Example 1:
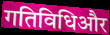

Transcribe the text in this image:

गतिविधिऔर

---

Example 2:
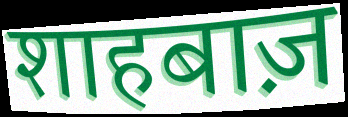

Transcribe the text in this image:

शाहबाज़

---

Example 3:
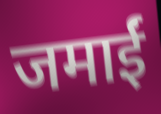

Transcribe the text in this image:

जमाईं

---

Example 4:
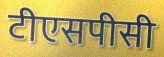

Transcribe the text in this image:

टीएसपीसी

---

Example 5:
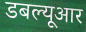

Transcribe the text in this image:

डबल्यूआर